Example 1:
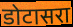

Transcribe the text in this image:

डोटासरा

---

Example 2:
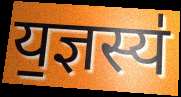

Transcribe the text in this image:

य॒ज्ञस्य॑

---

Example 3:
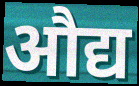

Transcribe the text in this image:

औद्य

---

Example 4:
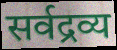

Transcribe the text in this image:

सर्वद्रव्य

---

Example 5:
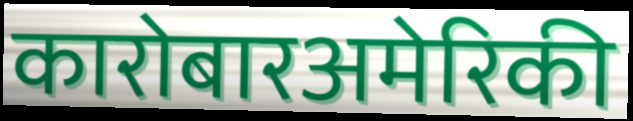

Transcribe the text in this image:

कारोबारअमेरिकी